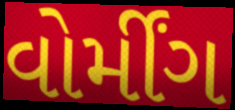
વોર્મીંગ